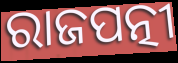
ରାଜପତ୍ନୀ